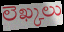
లెఖ్కలు